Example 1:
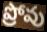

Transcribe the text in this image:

ప్రోవు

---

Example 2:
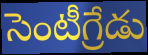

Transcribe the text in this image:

సెంటీగ్రేడు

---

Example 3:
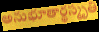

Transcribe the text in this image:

అనుభూతార్థస్మృతి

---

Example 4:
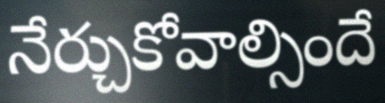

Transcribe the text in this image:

నేర్చుకోవాల్సిందే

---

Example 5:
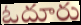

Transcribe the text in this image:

ఓదూరు